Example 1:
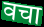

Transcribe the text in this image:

वचा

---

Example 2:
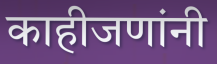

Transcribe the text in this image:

काहीजणांनी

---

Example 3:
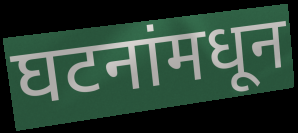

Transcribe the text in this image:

घटनांमधून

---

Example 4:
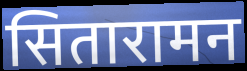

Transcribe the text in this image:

सितारामन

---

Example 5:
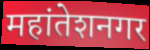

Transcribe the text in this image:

महांतेशनगर